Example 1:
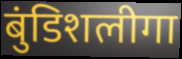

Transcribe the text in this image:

बुंडिशलीगा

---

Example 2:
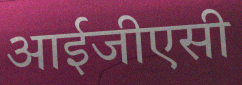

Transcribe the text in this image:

आईजीएसी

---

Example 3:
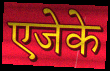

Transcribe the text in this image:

एजेके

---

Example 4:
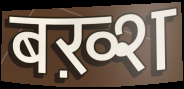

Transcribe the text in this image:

बख़्श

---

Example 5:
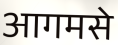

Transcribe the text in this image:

आगमसे